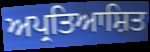
ਅਪ੍ਰਤਿਆਸ਼ਿਤ